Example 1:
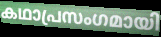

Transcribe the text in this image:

കഥാപ്രസംഗമായി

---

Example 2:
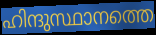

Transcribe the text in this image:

ഹിന്ദുസ്ഥാനത്തെ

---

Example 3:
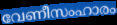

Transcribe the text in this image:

വേണീസംഹാരം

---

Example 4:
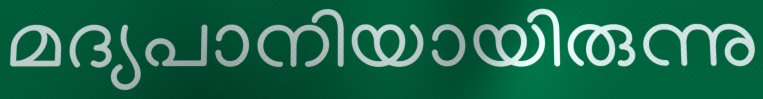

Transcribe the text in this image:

മദ്യപാനിയായിരുന്നു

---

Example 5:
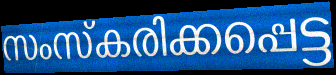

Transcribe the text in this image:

സംസ്‌കരിക്കപ്പെട്ട